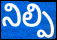
నిల్పి